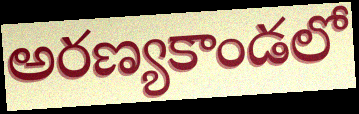
అరణ్యకాండలో